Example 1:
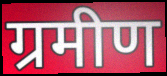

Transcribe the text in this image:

ग्रमीण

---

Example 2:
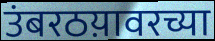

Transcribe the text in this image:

उंबरठय़ावरच्या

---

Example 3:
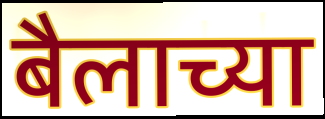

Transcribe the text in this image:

बैलाच्या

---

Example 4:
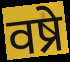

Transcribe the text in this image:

वष्रे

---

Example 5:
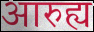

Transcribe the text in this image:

आरुह्य